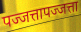
पज्जत्तापज्जत्ता